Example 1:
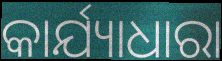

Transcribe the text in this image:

କାର୍ଯ୍ୟାଧାରା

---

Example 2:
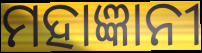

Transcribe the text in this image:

ମହାଜ୍ଞାନୀ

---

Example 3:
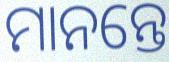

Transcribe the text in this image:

ମାନନ୍ତେ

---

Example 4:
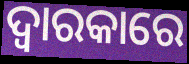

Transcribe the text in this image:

ଦ୍ବାରକାରେ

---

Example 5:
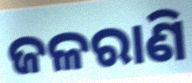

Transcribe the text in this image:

ଜଳରାଣି